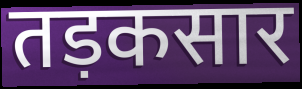
तड़कसार